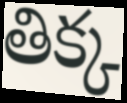
తిక్క